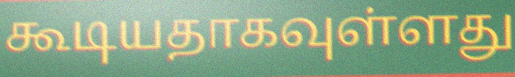
கூடியதாகவுள்ளது